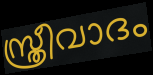
സ്ത്രീവാദം